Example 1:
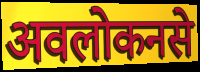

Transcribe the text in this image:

अवलोकनसे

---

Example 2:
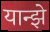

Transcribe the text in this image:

यान्झे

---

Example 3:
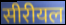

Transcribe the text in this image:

सीरीयल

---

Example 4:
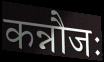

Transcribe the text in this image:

कन्नौजः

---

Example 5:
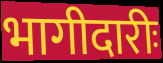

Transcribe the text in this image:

भागीदारीः